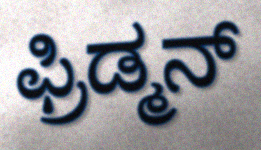
ಫ್ರಿಡ್ಮನ್